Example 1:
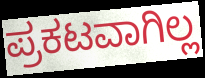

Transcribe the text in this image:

ಪ್ರಕಟವಾಗಿಲ್ಲ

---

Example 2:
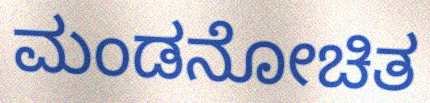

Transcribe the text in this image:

ಮಂಡನೋಚಿತ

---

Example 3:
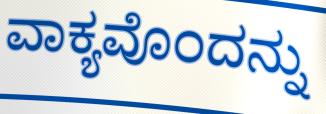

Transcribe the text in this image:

ವಾಕ್ಯವೊಂದನ್ನು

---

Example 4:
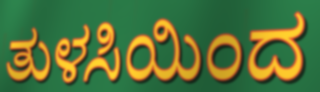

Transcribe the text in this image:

ತುಳಸಿಯಿಂದ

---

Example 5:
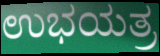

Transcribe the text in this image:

ಉಭಯತ್ರ